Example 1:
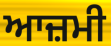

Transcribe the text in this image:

ਆਜ਼ਮੀ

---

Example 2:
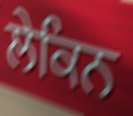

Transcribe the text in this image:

ਲੇਕਿਨ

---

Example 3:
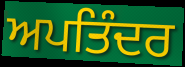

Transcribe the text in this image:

ਅਪਤਿੰਦਰ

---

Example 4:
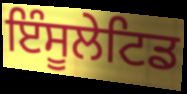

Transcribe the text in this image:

ਇੰਸੂਲੇਟਿਡ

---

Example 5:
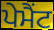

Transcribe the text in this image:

ਪੇਮੈਂਟ